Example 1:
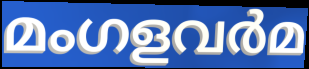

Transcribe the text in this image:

മംഗളവർമ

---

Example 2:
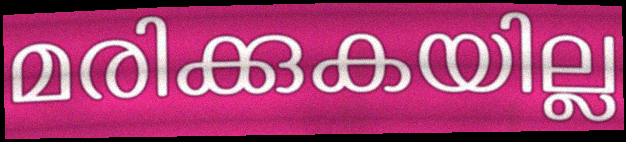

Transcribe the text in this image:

മരിക്കുകയില്ല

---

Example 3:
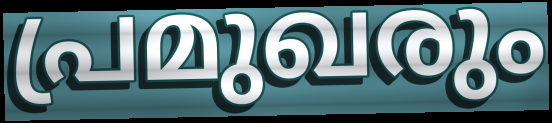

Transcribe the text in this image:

പ്രമുഖരും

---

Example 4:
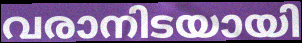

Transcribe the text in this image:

വരാനിടയായി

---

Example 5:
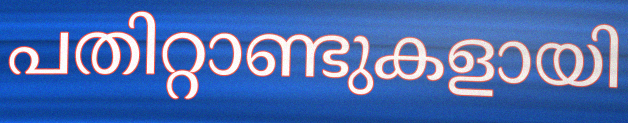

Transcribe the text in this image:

പതിറ്റാണ്ടുകളായി